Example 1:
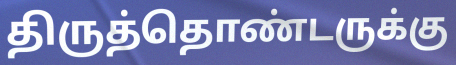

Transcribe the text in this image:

திருத்தொண்டருக்கு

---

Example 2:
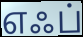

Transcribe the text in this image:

எஃப்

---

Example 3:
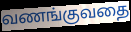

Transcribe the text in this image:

வணங்குவதை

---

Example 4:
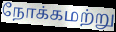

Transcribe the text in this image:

நோக்கமற்று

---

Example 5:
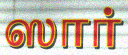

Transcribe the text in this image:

ஸார்